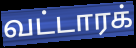
வட்டாரக்